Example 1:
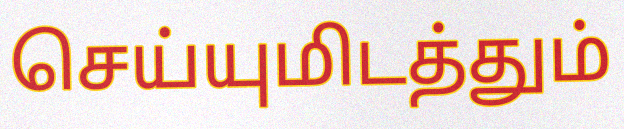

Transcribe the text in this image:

செய்யுமிடத்தும்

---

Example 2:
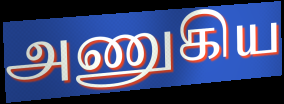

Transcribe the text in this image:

அணுகிய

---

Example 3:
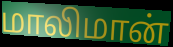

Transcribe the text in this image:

மாலிமான்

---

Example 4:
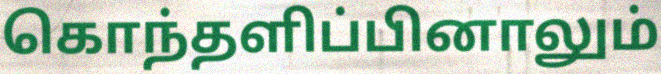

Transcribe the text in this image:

கொந்தளிப்பினாலும்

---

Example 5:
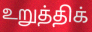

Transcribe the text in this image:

உறுத்திக்